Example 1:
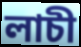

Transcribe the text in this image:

লাচী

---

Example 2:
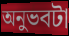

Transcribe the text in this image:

অনুভবটা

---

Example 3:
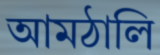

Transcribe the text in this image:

আমঠালি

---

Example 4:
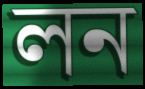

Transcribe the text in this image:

লন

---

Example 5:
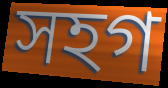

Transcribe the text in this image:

সহগ